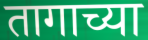
तागाच्या